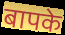
बापके